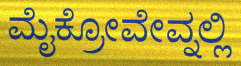
ಮೈಕ್ರೋವೇವ್ನಲ್ಲಿ